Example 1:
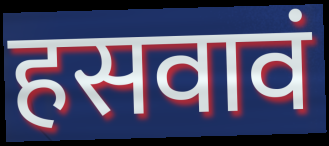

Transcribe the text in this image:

हसवावं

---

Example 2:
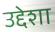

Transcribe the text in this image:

उद्देशा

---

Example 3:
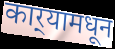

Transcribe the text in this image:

कार्यामधून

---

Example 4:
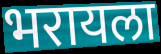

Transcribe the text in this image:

भरायला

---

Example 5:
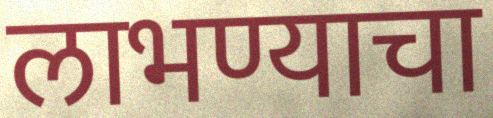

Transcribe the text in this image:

लाभण्याचा